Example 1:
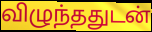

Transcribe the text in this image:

விழுந்ததுடன்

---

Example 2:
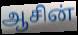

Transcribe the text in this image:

ஆசின்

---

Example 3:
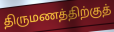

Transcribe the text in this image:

திருமணத்திற்குத்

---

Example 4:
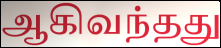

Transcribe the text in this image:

ஆகிவந்தது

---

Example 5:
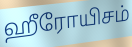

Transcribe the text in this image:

ஹீரோயிசம்